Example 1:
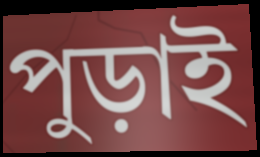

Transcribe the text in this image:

পুড়াই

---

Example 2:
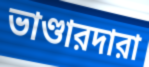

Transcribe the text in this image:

ভাণ্ডারদারা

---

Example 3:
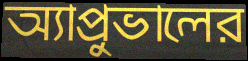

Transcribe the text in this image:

অ্যাপ্রুভালের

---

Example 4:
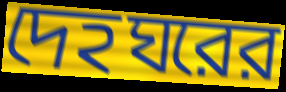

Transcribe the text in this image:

দেহঘরের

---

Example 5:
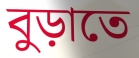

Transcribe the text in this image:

বুড়াতে